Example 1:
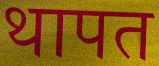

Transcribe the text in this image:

थापत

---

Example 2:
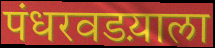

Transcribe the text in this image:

पंधरवडय़ाला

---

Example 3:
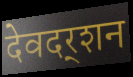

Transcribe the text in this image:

देवदर्शन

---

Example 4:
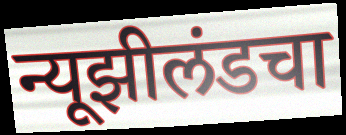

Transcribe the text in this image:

न्यूझीलंडचा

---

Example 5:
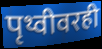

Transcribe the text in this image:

पृथ्वीवरही